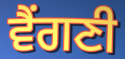
ਵੈਂਗਣੀ